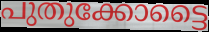
പുതുക്കോട്ടൈ